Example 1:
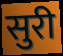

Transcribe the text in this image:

सुरी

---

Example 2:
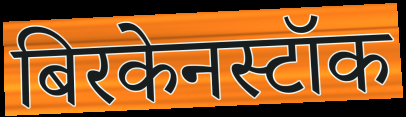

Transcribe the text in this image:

बिरकेनस्टॉक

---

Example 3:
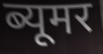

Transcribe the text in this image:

ब्यूमर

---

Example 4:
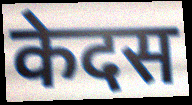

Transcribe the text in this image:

केदस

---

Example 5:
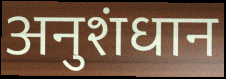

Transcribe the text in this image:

अनुशंधान